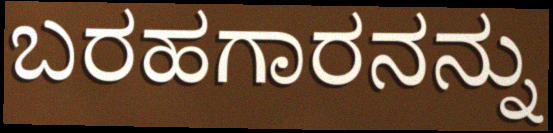
ಬರಹಗಾರನನ್ನು